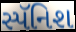
સ્પૅનિશ